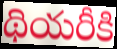
థియరీకి